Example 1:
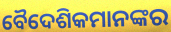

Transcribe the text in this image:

ବୈଦେଶିକମାନଙ୍କର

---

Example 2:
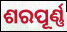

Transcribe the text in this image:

ଶରପୂର୍ଣ୍ଣ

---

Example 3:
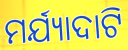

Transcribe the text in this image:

ମର୍ଯ୍ୟାଦାଟି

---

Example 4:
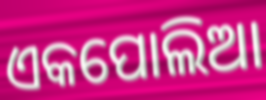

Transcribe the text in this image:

ଏକପୋଲିଆ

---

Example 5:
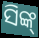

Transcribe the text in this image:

ସିଙ୍କ୍